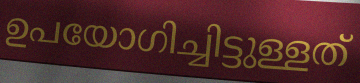
ഉപയോഗിച്ചിട്ടുള്ളത്